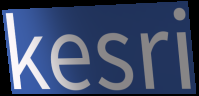
kesri